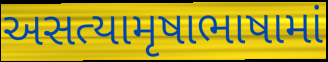
અસત્યામૃષાભાષામાં